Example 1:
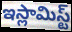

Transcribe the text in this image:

ఇస్లామిస్ట్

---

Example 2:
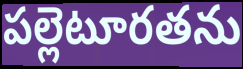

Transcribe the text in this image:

పల్లెటూరతను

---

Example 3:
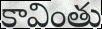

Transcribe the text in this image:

కావింతు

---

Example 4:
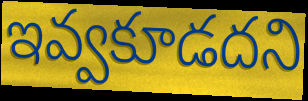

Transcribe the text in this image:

ఇవ్వకూడదని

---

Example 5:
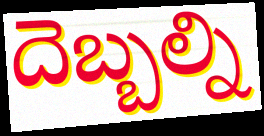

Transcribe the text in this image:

దెబ్బల్ని